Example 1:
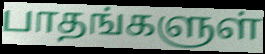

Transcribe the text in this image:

பாதங்களுள்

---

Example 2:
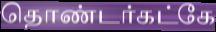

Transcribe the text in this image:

தொண்டர்கட்கே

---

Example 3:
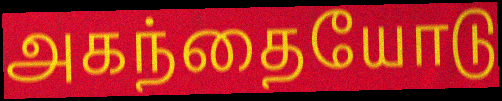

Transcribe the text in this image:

அகந்தையோடு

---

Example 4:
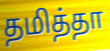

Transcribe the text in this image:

தமித்தா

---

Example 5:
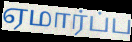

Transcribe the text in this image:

ஏமார்ப்ப